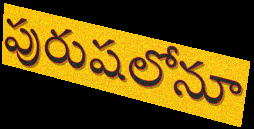
పురుషలోనూ